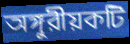
অঙ্গুরীয়কটি